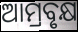
ଆମ୍ରବୃକ୍ଷ